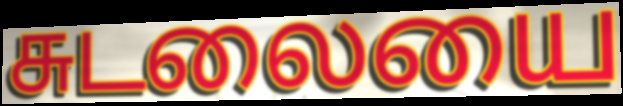
சுடலையை